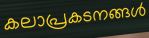
കലാപ്രകടനങ്ങൾ